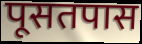
पूसतपास